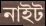
নাইট